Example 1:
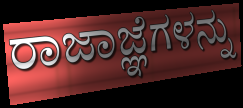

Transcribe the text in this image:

ರಾಜಾಜ್ಞೆಗಳನ್ನು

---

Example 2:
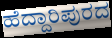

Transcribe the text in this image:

ಹೆದ್ದಾರಿಪುರದ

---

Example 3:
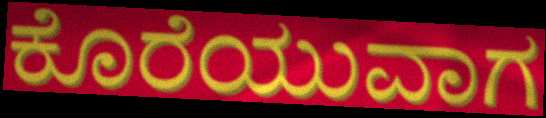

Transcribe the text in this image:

ಕೊರೆಯುವಾಗ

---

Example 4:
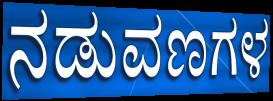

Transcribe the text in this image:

ನಡುವಣಗಳ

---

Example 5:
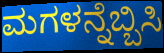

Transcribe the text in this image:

ಮಗಳನ್ನೆಬ್ಬಿಸಿ